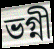
ভগ্নী